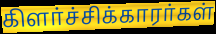
கிளர்ச்சிக்காரர்கள்